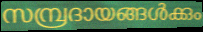
സമ്പ്രദായങ്ങൾക്കും